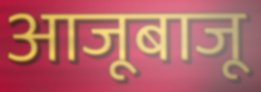
आजूबाजू